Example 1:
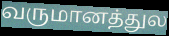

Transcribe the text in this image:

வருமானத்துல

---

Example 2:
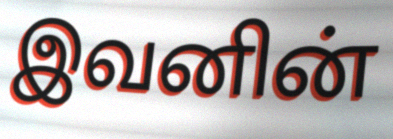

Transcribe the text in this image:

இவனின்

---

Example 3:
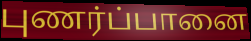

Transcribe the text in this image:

புணர்ப்பானை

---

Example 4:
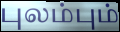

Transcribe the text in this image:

புலம்பும்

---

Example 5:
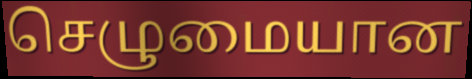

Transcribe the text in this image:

செழுமையான